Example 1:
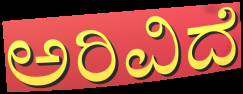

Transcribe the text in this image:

ಅರಿವಿದೆ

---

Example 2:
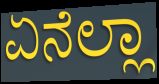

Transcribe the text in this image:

ಏನೆಲ್ಲಾ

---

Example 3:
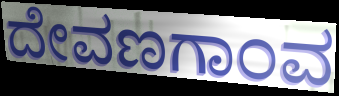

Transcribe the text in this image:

ದೇವಣಗಾಂವ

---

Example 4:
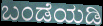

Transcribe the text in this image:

ಬಂಡೆಯಡಿ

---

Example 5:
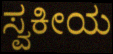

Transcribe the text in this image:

ಸ್ವಕೀಯ